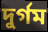
দুর্গম